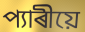
প্যাৰীয়ে